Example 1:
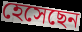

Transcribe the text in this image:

হেসেছেন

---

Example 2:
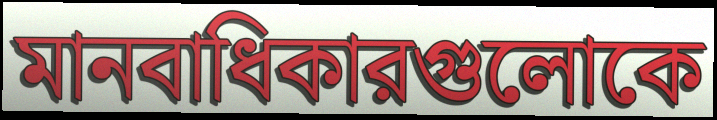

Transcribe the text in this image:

মানবাধিকারগুলোকে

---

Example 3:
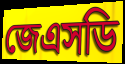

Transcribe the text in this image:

জেএসডি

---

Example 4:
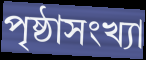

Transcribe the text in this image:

পৃষ্ঠাসংখ্যা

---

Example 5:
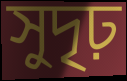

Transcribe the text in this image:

সুদৃঢ়